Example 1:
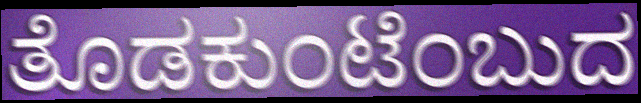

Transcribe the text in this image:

ತೊಡಕುಂಟೆಂಬುದ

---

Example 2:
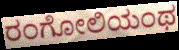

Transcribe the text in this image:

ರಂಗೋಲಿಯಂಥ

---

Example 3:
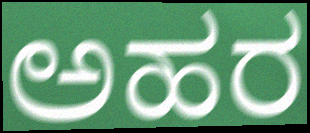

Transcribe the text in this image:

ಅಹರ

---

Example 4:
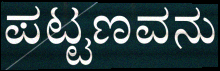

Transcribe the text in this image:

ಪಟ್ಟಣವನು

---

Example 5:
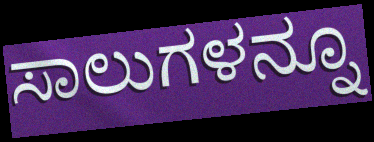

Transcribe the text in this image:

ಸಾಲುಗಳನ್ನೂ